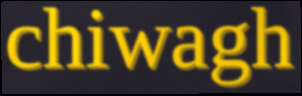
chiwagh